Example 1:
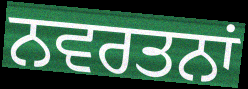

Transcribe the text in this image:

ਨਵਰਤਨਾਂ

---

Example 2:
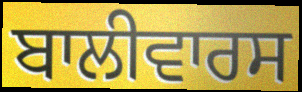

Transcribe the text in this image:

ਬਾਲੀਵਾਰਸ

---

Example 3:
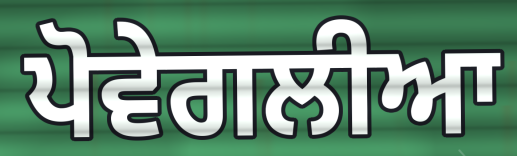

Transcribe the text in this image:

ਪੋਵੇਗਲੀਆ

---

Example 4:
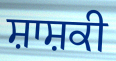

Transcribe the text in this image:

ਸ਼ਾਸ਼ਕੀ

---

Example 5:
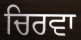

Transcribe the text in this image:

ਚਿਰਵਾ